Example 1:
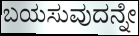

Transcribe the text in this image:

ಬಯಸುವುದನ್ನೇ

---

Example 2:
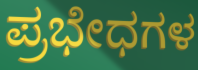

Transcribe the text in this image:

ಪ್ರಭೇಧಗಳ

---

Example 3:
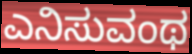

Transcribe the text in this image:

ಎನಿಸುವಂಥ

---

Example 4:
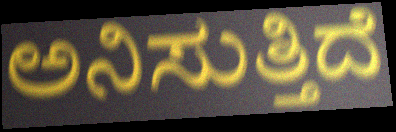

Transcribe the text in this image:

ಅನಿಸುತ್ತಿದೆ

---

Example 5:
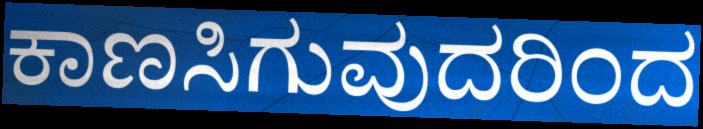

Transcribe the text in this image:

ಕಾಣಸಿಗುವುದರಿಂದ